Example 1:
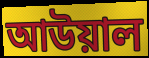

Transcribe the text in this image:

আউয়াল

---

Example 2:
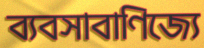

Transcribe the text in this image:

ব্যবসাবাণিজ্যে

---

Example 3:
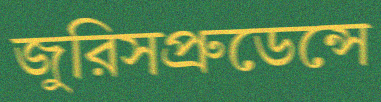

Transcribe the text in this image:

জুরিসপ্রুডেন্সে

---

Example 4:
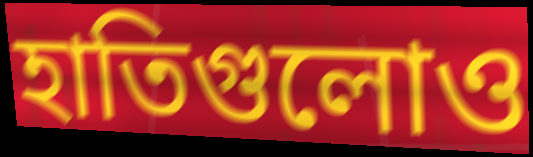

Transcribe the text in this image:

হাতিগুলোও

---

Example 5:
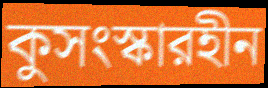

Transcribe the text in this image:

কুসংস্কারহীন